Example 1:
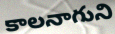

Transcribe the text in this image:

కాలనాగుని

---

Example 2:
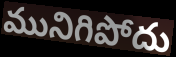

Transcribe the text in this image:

మునిగిపోదు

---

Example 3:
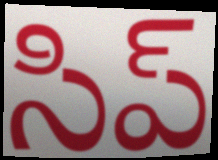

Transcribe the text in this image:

సిప్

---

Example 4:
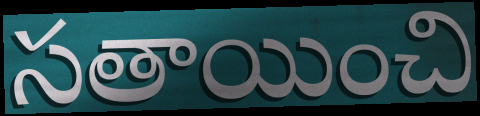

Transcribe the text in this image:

సతాయించి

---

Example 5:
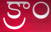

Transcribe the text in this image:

క్రాం